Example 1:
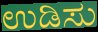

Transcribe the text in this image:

ಉಡಿಸು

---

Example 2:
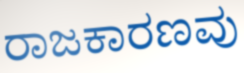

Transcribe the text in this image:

ರಾಜಕಾರಣವು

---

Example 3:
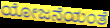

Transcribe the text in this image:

ಯೋಜನೆಯಂತೆ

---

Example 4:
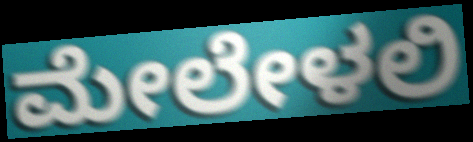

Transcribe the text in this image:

ಮೇಲೇಳಲಿ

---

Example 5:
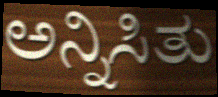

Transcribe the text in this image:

ಅನ್ನಿಸಿತು